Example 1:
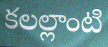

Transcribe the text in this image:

కలల్లాంటి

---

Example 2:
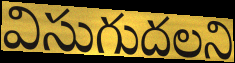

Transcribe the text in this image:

విసుగుదలని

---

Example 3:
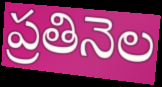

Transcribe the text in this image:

ప్రతినెల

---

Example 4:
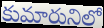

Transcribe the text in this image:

కుమారునిలో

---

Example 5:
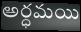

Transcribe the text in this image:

అర్ధమయి